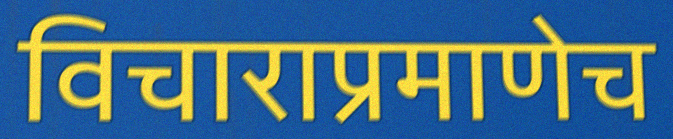
विचाराप्रमाणेच